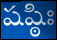
షష్ఠిః